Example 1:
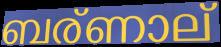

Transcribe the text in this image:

ബര്ണാല്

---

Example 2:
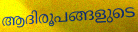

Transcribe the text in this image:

ആദിരൂപങ്ങളുടെ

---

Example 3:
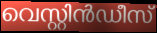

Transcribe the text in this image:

വെസ്റ്റിൻഡീസ്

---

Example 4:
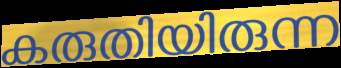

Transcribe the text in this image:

കരുതിയിരുന്ന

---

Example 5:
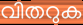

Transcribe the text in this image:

വിതറുക